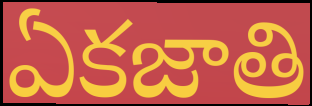
ఏకజాతి